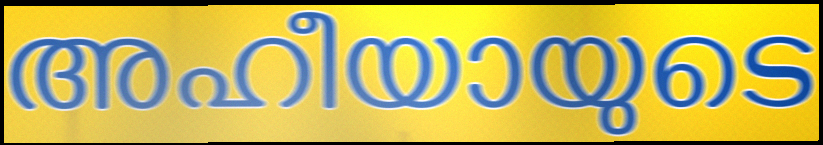
അഹീയായുടെ